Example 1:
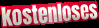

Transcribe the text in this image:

kostenloses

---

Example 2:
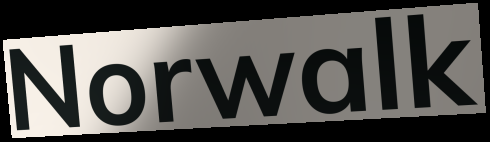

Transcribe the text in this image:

Norwalk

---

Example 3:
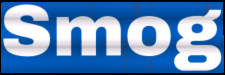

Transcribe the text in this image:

Smog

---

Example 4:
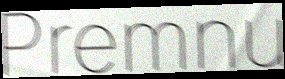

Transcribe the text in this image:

Premnu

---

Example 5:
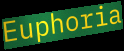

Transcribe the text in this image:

Euphoria